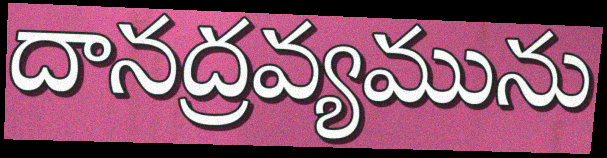
దానద్రవ్యమును